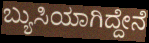
ಬ್ಯುಸಿಯಾಗಿದ್ದೇನೆ